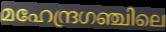
മഹേന്ദ്രഗഞ്ചിലെ